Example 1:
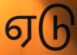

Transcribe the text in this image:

ஏடு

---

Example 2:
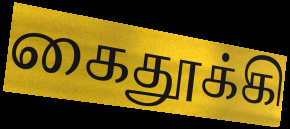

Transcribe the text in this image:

கைதூக்கி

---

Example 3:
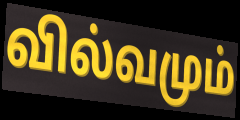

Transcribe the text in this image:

வில்வமும்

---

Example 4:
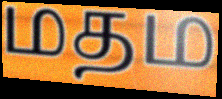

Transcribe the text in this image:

மதம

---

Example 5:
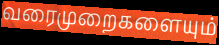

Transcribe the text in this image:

வரைமுறைகளையும்